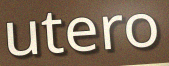
utero